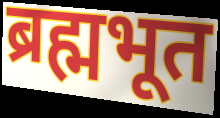
ब्रह्मभूत